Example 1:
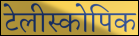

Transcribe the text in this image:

टेलीस्कोपिक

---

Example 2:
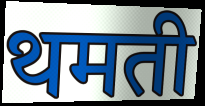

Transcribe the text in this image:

थमती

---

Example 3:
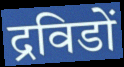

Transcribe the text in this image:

द्रविडों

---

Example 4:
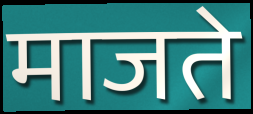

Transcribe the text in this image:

माजते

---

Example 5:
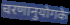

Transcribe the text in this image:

चरणानुयोगके